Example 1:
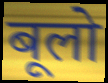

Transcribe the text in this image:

बूलो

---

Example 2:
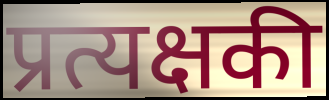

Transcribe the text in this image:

प्रत्यक्षकी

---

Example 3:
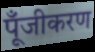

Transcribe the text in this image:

पूँजीकरण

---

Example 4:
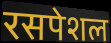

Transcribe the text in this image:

रसपेशल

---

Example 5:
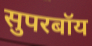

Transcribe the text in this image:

सुपरबॉय